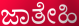
ಜಾತೇಹಿ